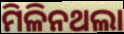
ମିଳିନଥଲା